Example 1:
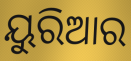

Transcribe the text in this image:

ୟୁରିଆର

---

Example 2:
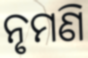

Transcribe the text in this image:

ନୃମଣି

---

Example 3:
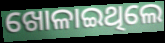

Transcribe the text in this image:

ଖୋଳାଇଥିଲେ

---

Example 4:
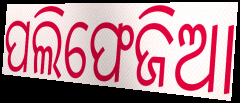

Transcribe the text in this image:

ପଲିଫେଜିଆ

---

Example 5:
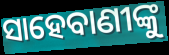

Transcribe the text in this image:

ସାହେବାଣୀଙ୍କୁ